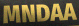
MNDAA